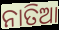
ନାତିଆ